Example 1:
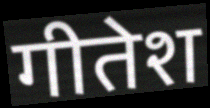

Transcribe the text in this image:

गीतेश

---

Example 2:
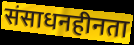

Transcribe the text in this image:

संसाधनहीनता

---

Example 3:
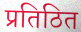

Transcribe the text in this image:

प्रतिठित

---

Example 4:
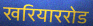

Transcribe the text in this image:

खरियाररोड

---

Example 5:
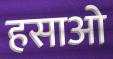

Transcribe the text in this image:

हसाओ